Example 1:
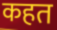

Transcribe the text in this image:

कहत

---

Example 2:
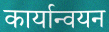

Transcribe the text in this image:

कार्यान्वयन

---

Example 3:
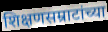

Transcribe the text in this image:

शिक्षणसम्राटांच्या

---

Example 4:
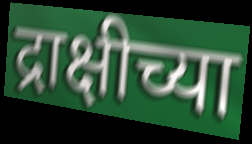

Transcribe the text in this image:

द्राक्षीच्या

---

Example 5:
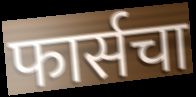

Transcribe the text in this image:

फार्सचा